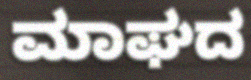
ಮಾಘದ